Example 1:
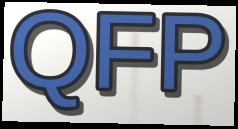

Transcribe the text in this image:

QFP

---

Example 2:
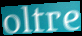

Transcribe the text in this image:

oltre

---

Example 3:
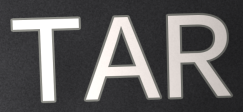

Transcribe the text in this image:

TAR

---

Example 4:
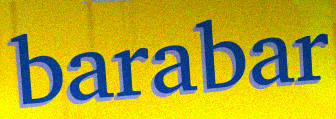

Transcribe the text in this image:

barabar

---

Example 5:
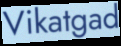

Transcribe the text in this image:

Vikatgad